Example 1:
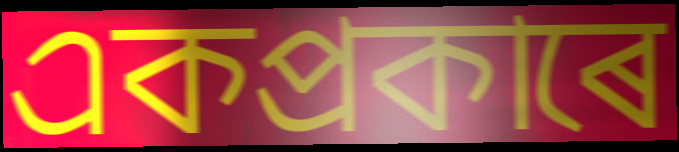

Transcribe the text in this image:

একপ্ৰকাৰে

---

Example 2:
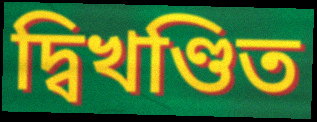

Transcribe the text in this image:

দ্বিখণ্ডিত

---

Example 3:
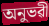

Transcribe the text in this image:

অনুভৱী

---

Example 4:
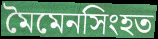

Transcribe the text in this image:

মৈমেনসিংহত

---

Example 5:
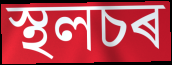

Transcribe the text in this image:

স্থলচৰ